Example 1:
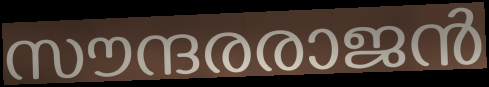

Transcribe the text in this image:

സൗന്ദരരാജൻ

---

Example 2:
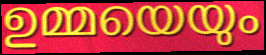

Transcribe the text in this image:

ഉമ്മയെയും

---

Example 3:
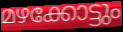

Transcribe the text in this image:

മഴക്കോട്ടും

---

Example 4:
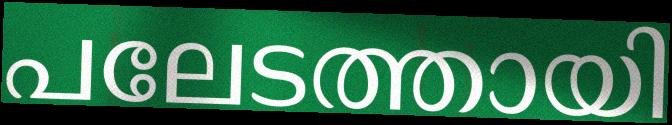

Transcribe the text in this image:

പലേടത്തായി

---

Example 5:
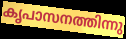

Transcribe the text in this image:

കൃപാസനത്തിന്നു